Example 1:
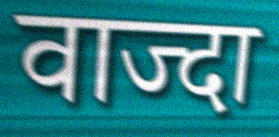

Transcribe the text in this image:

वाज्दा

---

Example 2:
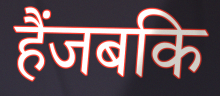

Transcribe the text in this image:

हैंजबकि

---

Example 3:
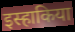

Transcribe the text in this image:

इस्हाकिया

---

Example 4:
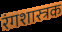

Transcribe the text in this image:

रंगशास्त्रक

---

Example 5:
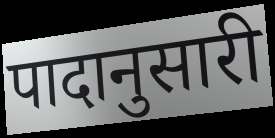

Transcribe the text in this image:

पादानुसारी